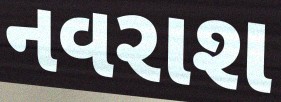
નવરાશ